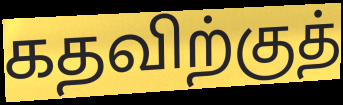
கதவிற்குத்